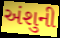
અંશુની